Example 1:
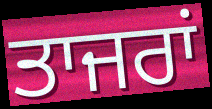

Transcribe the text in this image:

ਤਾਜਰਾਂ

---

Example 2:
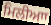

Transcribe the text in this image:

ਮਿਲੀਆਾ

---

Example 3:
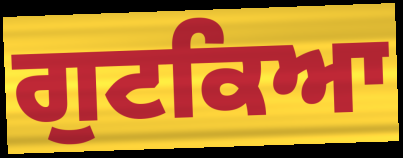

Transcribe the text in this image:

ਗੁਟਕਿਆ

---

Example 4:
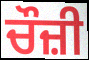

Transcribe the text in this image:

ਚੌਜ਼ੀ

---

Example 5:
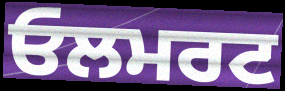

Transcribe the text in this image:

ਓਲਮਰਟ